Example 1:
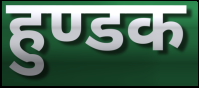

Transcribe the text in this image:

हुण्डक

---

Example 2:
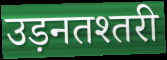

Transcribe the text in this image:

उड़नतश्तरी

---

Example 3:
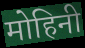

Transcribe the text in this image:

मोहिनी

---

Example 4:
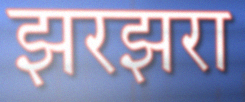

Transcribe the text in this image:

झरझरा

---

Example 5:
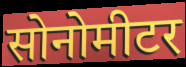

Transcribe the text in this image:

सोनोमीटर